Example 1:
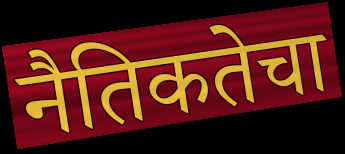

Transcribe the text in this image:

नैतिकतेचा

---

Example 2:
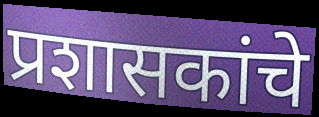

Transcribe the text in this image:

प्रशासकांचे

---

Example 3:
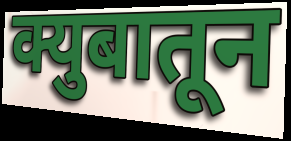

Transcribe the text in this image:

क्युबातून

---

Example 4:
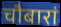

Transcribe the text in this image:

चौबारां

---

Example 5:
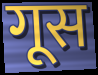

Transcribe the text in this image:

गूस